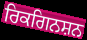
ਰਿਕਗਿਨਸ਼ਨ